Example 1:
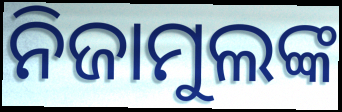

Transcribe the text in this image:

ନିଜାମୁଲଙ୍କ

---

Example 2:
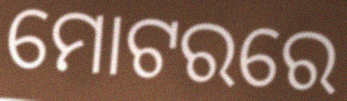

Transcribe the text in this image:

ମୋଟରରେ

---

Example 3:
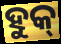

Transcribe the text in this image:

ହୁକ୍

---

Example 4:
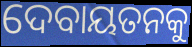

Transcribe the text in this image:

ଦେବାୟତନକୁ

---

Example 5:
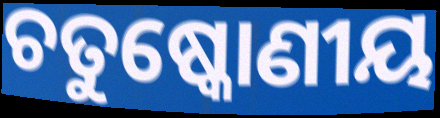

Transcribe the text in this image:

ଚତୁଷ୍କୋଣୀୟ